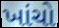
ખાંચો